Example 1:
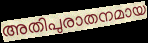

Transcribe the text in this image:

അതിപുരാതനമായ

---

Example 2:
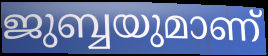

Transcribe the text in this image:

ജുബ്ബയുമാണ്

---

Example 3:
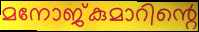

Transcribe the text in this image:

മനോജ്കുമാറിന്റെ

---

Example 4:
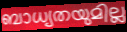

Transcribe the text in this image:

ബാധ്യതയുമില്ല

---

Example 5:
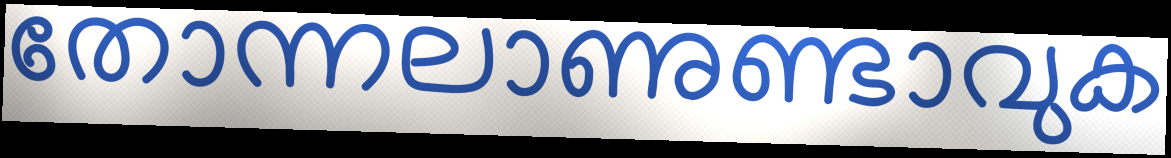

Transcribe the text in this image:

തോന്നലാണുണ്ടാവുക